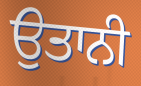
ਉਤਾਨੀ